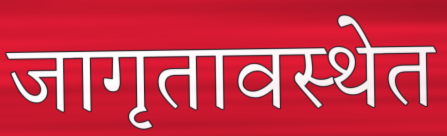
जागृतावस्थेत